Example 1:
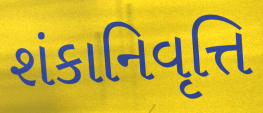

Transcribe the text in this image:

શંકાનિવૃત્તિ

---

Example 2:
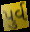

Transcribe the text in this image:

પુર્વ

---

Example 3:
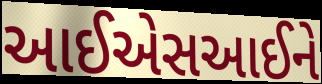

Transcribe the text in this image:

આઈએસઆઈને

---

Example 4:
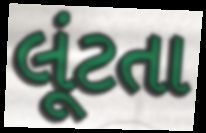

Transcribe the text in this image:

લૂંટતા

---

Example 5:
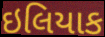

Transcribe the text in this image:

ઇલિયાક